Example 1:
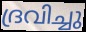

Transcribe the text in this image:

ദ്രവിച്ചു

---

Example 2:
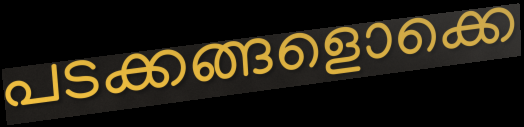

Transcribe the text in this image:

പടക്കങ്ങളൊക്കെ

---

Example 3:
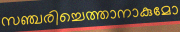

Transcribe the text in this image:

സഞ്ചരിച്ചെത്താനാകുമോ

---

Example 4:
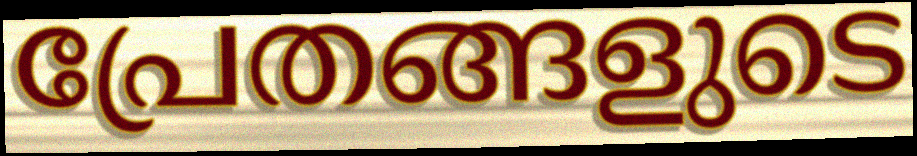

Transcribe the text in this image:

പ്രേതങ്ങളുടെ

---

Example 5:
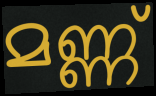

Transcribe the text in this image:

മണ്ണ്